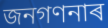
জনগণনাৰ